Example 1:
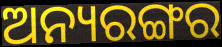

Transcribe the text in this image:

ଅନ୍ୟରଙ୍ଗର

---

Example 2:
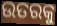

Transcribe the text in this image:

ଉତରକୁ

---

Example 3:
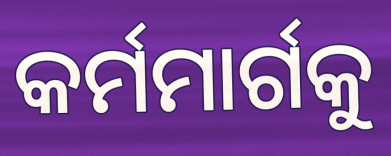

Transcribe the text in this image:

କର୍ମମାର୍ଗକୁ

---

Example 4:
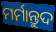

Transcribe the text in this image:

ମର୍ମାନ୍ତୁଦ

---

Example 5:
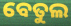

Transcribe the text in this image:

ବେତୁଲ